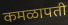
कमळापती